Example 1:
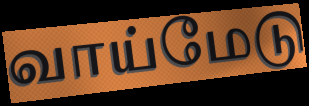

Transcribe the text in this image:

வாய்மேடு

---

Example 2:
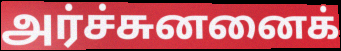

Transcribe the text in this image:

அர்ச்சுனனைக்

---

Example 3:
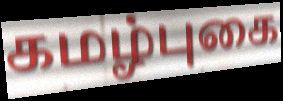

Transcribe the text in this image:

கமழ்புகை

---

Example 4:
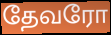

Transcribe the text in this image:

தேவரோ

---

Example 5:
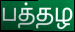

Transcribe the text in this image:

பத்தழ